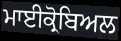
ਮਾਈਕ੍ਰੋਬਿਅਲ